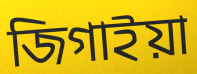
জিগাইয়া